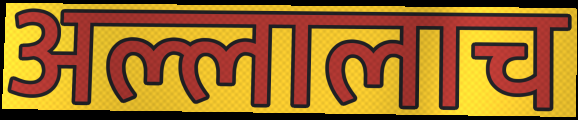
अल्लालाच